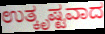
ಉತ್ಕೃಷ್ಟವಾದ